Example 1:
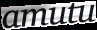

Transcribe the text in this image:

amutu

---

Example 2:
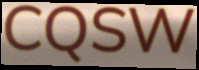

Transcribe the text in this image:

CQSW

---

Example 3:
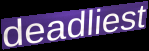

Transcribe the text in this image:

deadliest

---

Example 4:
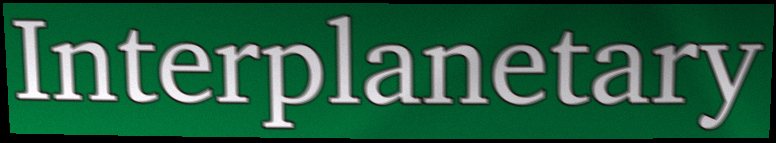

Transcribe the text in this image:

Interplanetary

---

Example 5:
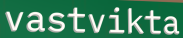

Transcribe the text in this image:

vastvikta